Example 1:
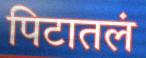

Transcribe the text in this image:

पिटातलं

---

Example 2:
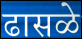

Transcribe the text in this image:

ढासळे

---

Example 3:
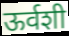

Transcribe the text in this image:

ऊर्वशी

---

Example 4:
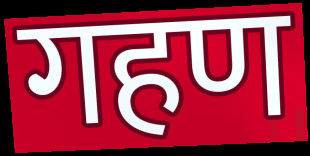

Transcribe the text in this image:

गहण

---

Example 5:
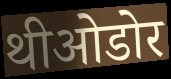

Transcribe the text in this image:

थीओडोर